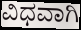
ವಿಧವಾಗಿ